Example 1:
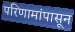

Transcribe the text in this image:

परिणामांपासून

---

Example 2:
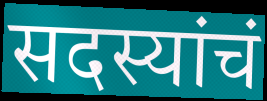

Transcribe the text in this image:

सदस्यांचं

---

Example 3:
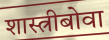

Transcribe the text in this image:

शास्त्रीबोवा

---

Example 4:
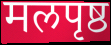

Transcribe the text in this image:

मलपृष्ठ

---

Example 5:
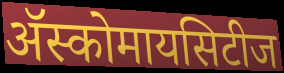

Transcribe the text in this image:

ॲस्कोमायसिटीज